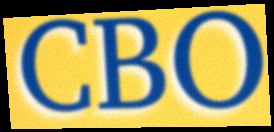
CBO